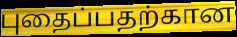
புதைப்பதற்கான